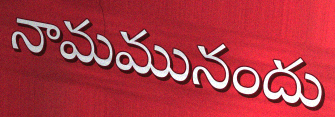
నామమునందు